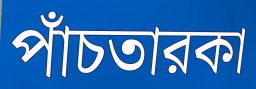
পাঁচতারকা